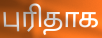
புரிதாக